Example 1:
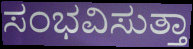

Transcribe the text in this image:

ಸಂಭವಿಸುತ್ತಾ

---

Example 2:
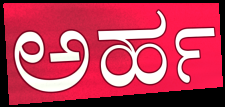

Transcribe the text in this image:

ಅರ್ಹ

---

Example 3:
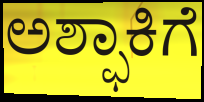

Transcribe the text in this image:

ಅಶ್ಫಾಕಿಗೆ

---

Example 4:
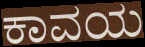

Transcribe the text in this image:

ಕಾವಯ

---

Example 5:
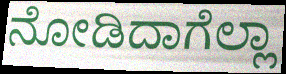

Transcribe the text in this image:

ನೋಡಿದಾಗೆಲ್ಲಾ